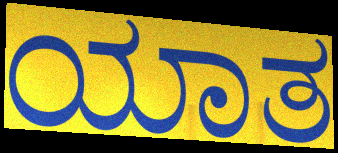
ಯಾತ